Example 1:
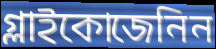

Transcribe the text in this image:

গ্লাইকোজেনিন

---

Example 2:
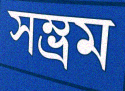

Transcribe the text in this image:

সম্ভ্রম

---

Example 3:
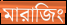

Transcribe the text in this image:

মারাজিং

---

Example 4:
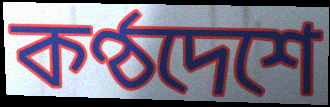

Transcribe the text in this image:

কণ্ঠদেশে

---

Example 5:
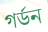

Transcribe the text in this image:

গর্ডন